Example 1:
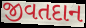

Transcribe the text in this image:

જીવતદાન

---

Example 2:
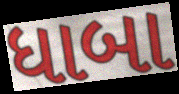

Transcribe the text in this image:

ધાબા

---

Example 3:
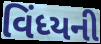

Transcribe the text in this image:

વિંધ્યની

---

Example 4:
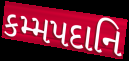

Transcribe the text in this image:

કમ્મપદાનિ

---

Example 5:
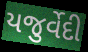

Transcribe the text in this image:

યજુર્વેદી